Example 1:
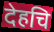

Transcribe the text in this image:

देहचि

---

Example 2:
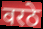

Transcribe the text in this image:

वरठे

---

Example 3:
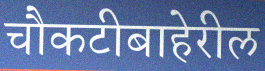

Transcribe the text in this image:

चौकटीबाहेरील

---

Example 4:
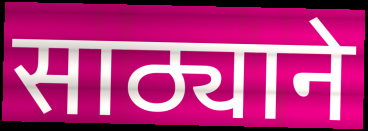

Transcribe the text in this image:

साठ्याने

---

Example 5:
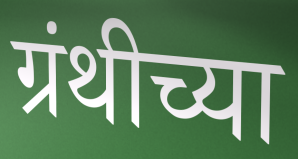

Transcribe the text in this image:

ग्रंथीच्या